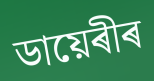
ডায়েৰীৰ